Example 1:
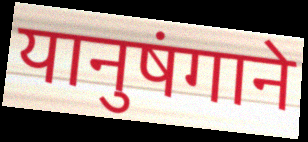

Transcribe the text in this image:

यानुषंगाने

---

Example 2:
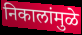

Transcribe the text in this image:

निकालांमुळे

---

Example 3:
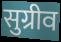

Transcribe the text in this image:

सुग्रीव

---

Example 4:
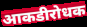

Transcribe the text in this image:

आकडीरोधक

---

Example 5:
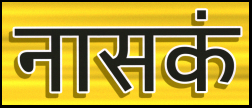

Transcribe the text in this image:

नासकं